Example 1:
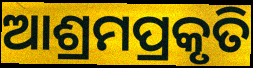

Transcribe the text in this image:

ଆଶ୍ରମପ୍ରକୃତି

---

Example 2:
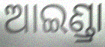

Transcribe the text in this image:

ଆଇଣ୍ଡ୍ରା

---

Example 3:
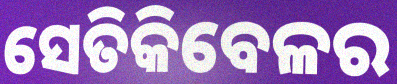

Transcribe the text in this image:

ସେତିକିବେଳର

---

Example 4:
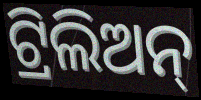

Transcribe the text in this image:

ଟ୍ରିଲିଅନ୍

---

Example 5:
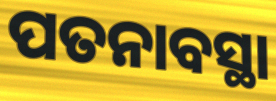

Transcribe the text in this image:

ପତନାବସ୍ଥା